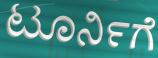
ಟೂರ್ನಿಗೆ